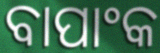
ବାପାଂକ